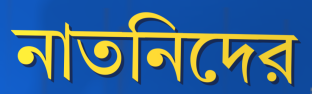
নাতনিদের